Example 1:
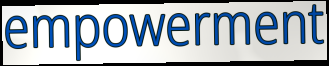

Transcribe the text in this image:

empowerment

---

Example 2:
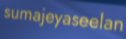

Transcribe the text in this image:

sumajeyaseelan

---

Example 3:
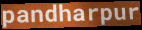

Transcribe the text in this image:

pandharpur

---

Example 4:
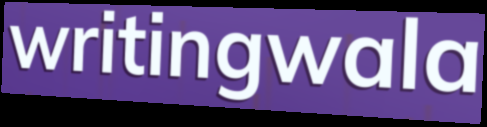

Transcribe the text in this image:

writingwala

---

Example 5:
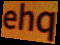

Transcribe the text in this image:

ehq